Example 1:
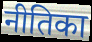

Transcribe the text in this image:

नीतिका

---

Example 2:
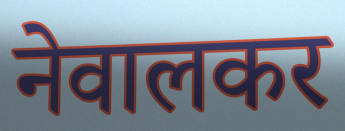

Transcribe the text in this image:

नेवालकर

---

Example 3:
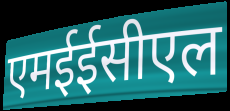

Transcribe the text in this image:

एमईईसीएल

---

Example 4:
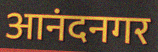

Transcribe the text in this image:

आनंदनगर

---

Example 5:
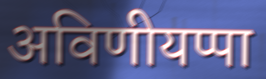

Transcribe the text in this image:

अविणीयप्पा